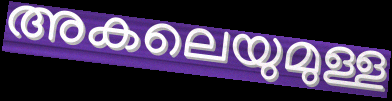
അകലെയുമുള്ള